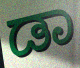
ಡಾ